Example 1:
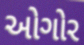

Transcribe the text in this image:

ઓગોર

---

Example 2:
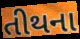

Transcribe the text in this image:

તીથના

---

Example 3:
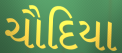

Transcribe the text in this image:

ચૌદિયા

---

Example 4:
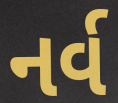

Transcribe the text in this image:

નર્વ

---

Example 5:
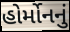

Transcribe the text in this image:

હોર્મોનનું